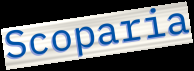
Scoparia